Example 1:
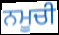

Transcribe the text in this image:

ਨਮੂਚੀ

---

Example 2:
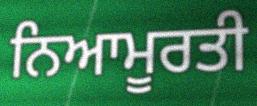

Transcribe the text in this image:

ਨਿਆਮੂਰਤੀ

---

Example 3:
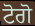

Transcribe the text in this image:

ਟੋਗੋ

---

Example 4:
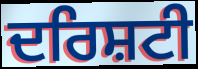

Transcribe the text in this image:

ਦਰਿਸ਼ਟੀ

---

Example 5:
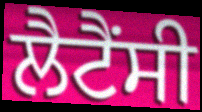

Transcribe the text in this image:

ਲੈਟੈਂਸੀ